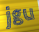
jgu